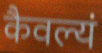
कैवल्यं